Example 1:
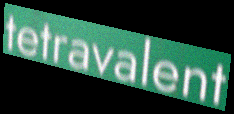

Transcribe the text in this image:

tetravalent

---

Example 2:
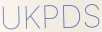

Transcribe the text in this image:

UKPDS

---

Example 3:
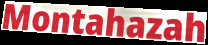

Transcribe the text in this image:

Montahazah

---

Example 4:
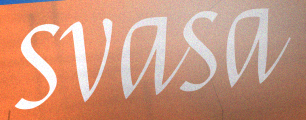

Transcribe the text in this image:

svasa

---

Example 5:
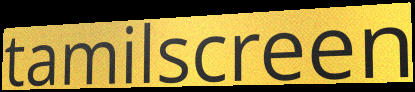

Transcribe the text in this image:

tamilscreen